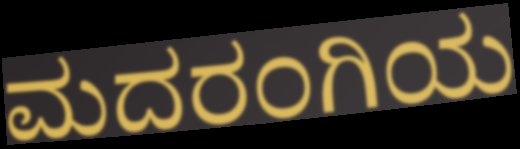
ಮದರಂಗಿಯ